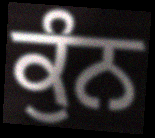
ਕੁੰਨ